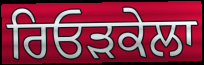
ਰਿਓੜਕੇਲਾ